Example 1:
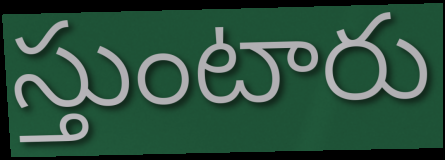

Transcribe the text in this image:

స్తుంటారు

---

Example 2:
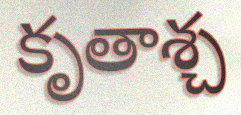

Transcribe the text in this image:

కృతాశ్చ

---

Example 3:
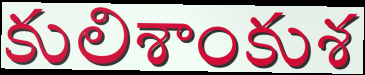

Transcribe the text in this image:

కులిశాంకుశ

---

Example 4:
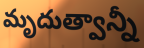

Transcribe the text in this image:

మృదుత్వాన్నీ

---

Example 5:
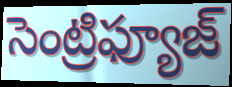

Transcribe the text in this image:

సెంట్రిఫ్యూజ్